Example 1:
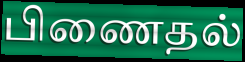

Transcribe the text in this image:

பிணைதல்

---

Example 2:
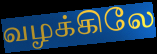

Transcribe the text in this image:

வழக்கிலே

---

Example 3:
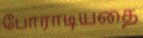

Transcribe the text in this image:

போராடியதை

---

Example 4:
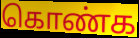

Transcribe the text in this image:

கொண்க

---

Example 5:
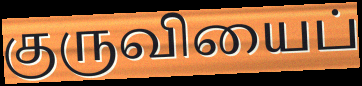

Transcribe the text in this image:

குருவியைப்